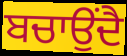
ਬਚਾਉਂਦੈ